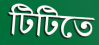
টিটিতে